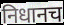
निधानच